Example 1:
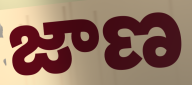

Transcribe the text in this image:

జాణ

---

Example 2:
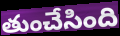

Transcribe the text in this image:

తుంచేసింది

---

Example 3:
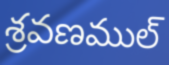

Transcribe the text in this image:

శ్రవణముల్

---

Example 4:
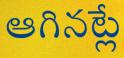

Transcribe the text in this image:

ఆగినట్లే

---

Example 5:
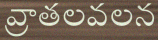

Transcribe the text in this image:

వ్రాతలవలన